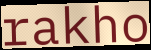
rakho